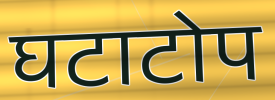
घटाटोप